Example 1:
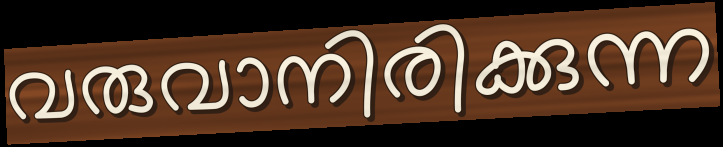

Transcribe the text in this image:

വരുവാനിരിക്കുന്ന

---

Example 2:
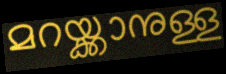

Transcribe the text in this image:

മറയ്ക്കാനുള്ള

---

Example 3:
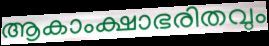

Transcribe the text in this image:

ആകാംക്ഷാഭരിതവും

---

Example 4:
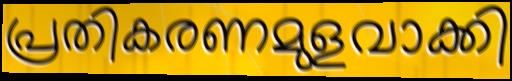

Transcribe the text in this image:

പ്രതികരണമുളവാക്കി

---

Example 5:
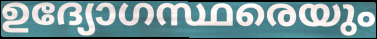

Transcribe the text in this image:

ഉദ്യോഗസ്ഥരെയും